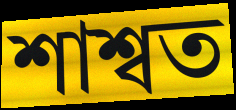
শাশ্বত